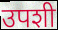
उपशी